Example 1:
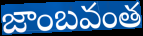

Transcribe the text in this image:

జాంబవంత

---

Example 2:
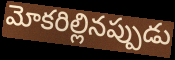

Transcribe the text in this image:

మోకరిల్లినప్పుడు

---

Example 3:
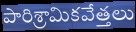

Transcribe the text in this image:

పారిశ్రామికవేత్తలు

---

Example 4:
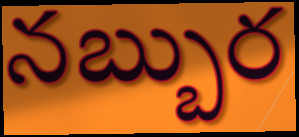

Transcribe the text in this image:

నబ్బుర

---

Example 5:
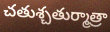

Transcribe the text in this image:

చతుశ్చతుర్మాత్రా